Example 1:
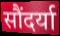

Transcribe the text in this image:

सौंदर्या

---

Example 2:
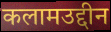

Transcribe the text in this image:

कलामउद्दीन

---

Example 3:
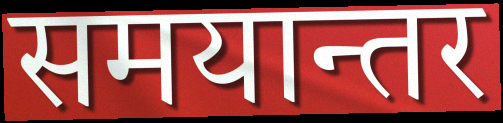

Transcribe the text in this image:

समयान्तर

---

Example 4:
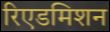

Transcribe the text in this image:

रिएडमिशन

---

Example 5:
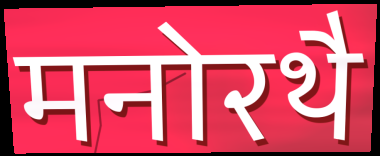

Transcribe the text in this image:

मनोरथै